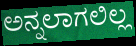
ಅನ್ನಲಾಗಲಿಲ್ಲ